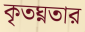
কৃতঘ্নতার